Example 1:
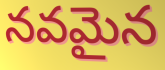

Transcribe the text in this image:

నవమైన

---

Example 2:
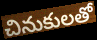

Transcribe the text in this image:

చినుకులతో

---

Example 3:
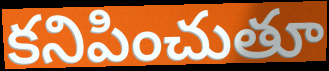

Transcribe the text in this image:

కనిపించుతూ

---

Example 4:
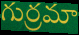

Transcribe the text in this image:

గుర్రమా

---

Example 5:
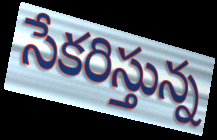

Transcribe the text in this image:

సేకరిస్తున్న